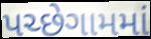
પચ્છેગામમાં